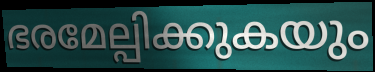
ഭരമേല്പിക്കുകയും